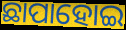
ଛାପାହୋଇ